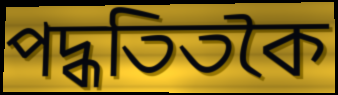
পদ্ধতিতকৈ